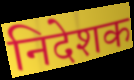
निदेशक